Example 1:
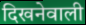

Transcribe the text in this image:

दिखनेवाली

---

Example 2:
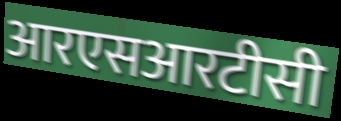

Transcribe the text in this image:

आरएसआरटीसी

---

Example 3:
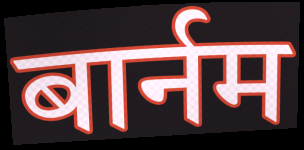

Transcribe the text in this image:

बार्नम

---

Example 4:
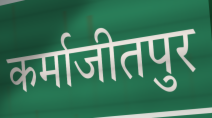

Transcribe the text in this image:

कर्माजीतपुर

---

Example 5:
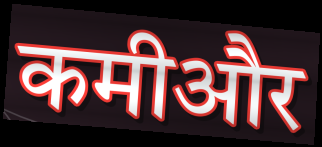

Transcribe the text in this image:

कमीऔर